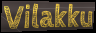
Vilakku